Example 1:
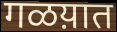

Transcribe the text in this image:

गळय़ात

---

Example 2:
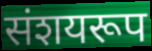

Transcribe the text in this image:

संशयरूप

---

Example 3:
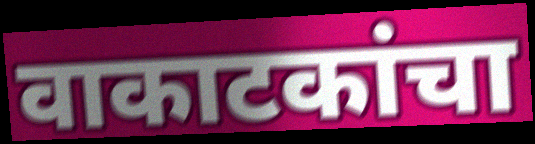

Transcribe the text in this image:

वाकाटकांचा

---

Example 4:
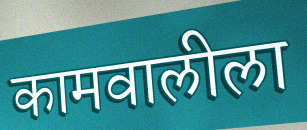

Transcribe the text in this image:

कामवालीला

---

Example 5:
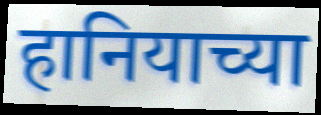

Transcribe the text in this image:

हानियाच्या